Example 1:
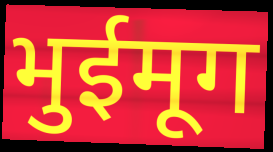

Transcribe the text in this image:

भुईमूग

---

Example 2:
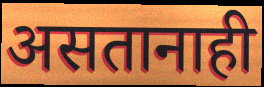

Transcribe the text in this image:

असतानाही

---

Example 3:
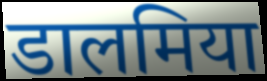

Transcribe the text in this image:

डालमिया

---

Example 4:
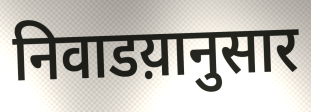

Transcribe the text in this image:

निवाडय़ानुसार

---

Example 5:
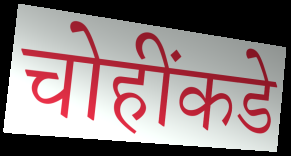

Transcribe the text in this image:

चोहींकडे